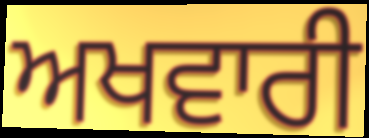
ਅਖਵਾਰੀ